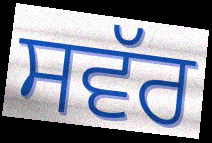
ਸਵੱਰ